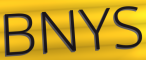
BNYS